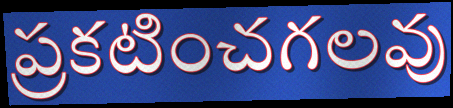
ప్రకటించగలవు